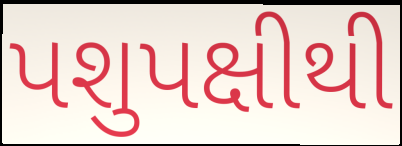
પશુપક્ષીથી